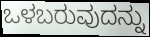
ಒಳಬರುವುದನ್ನು